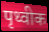
पृथ्वीक